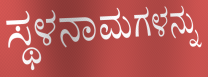
ಸ್ಥಳನಾಮಗಳನ್ನು